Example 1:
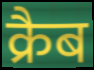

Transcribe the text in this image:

क्रैब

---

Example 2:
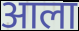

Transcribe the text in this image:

आला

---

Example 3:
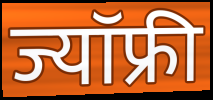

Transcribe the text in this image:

ज्यॉफ्री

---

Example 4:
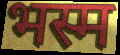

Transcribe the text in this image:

भस्म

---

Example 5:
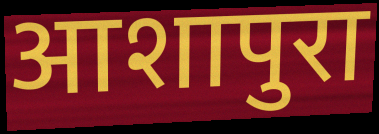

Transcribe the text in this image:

आशापुरा